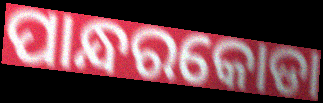
ପାନ୍ଧରକୋଡା